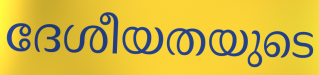
ദേശീയതയുടെ